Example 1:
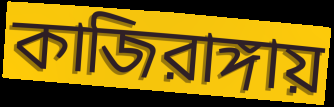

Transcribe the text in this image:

কাজিরাঙ্গায়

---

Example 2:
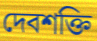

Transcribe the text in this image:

দেবশক্তি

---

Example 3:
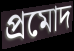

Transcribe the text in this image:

প্রমোদ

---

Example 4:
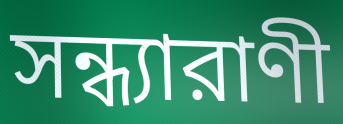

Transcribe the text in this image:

সন্ধ্যারাণী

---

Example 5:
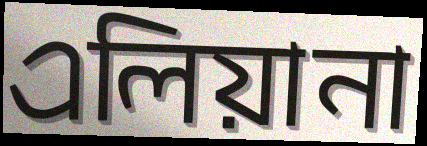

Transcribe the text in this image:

এলিয়ানা